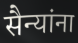
सैन्यांना